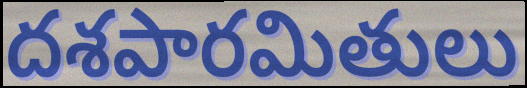
దశపారమితులు